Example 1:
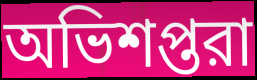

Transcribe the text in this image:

অভিশপ্তরা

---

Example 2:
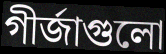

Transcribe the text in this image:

গীর্জাগুলো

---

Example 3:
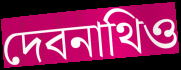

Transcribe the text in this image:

দেবনাথিও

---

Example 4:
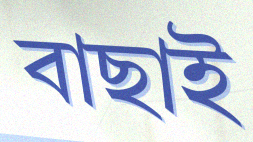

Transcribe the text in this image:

বাছাই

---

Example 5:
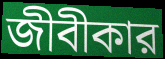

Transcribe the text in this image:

জীবীকার